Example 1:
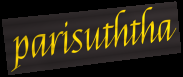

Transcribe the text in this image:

parisuththa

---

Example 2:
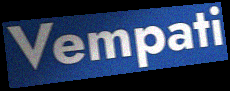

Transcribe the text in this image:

Vempati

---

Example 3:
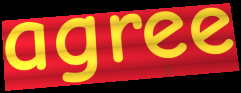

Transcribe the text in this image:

agree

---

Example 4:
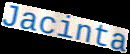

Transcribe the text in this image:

Jacinta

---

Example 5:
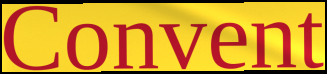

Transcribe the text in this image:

Convent